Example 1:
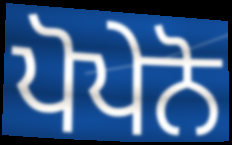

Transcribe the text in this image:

ਪੋਪੇਨੋ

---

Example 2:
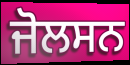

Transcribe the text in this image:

ਜੋਲਸਨ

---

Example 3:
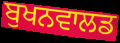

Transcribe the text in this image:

ਬੁਖਨਵਾਲਡ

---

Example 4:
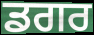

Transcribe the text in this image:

ਡਗਰ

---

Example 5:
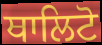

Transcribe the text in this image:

ਥਾਲਿਟੋ